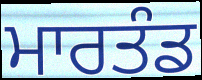
ਮਾਰਤੰਡ